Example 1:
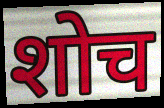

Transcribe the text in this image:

शोच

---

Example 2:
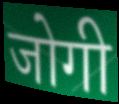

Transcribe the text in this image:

जोगी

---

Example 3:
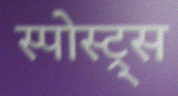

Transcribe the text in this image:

स्पोस्ट्र्स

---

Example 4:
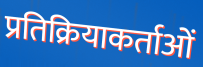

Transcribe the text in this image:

प्रतिक्रियाकर्ताओं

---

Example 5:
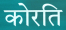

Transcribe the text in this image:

कोरति